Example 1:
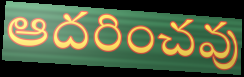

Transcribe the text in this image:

ఆదరించవు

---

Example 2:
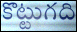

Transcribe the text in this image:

కొట్టుగది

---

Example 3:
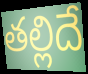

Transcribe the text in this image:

తల్లిదే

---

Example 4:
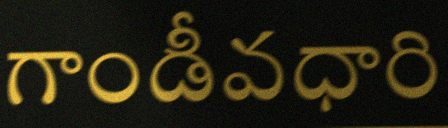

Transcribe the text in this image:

గాండీవధారి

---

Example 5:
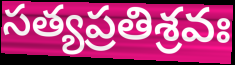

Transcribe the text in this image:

సత్యప్రతిశ్రవః